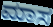
ಮಾಸ